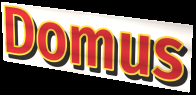
Domus